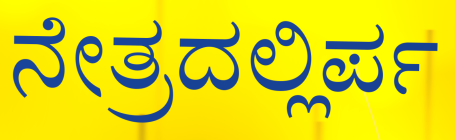
ನೇತ್ರದಲ್ಲಿರ್ಪ